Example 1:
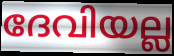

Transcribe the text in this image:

ദേവിയല്ല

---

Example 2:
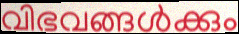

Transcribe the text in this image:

വിഭവങ്ങൾക്കും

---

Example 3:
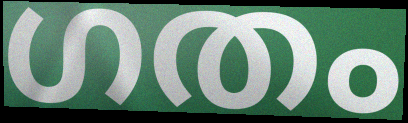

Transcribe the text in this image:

ഗതം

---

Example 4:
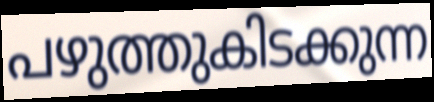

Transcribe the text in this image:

പഴുത്തുകിടക്കുന്ന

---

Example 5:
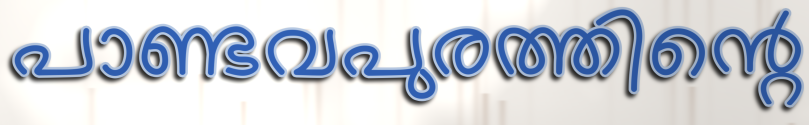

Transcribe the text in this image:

പാണ്ടവപുരത്തിന്റെ